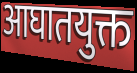
आघातयुक्त